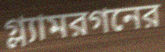
গ্ল্যামরগনের